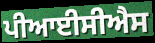
ਪੀਆਈਸੀਐਸ